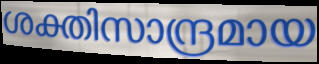
ശക്തിസാന്ദ്രമായ